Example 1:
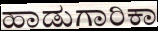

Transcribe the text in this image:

ಹಾಡುಗಾರಿಕಾ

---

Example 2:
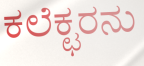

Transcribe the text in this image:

ಕಲೆಕ್ಟರನು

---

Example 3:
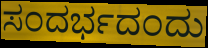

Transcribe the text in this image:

ಸಂದರ್ಭದಂದು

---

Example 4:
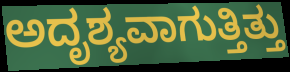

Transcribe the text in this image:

ಅದೃಶ್ಯವಾಗುತ್ತಿತ್ತು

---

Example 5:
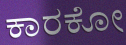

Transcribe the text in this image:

ಕಾರಕೋ